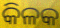
କିଳକ